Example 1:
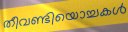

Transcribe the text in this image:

തീവണ്ടിയൊച്ചകൾ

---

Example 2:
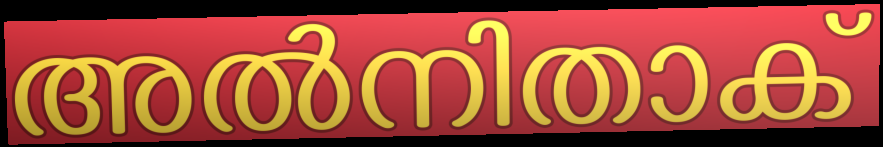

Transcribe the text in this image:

അൽനിതാക്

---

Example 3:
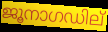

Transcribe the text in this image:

ജൂനാഗഡില്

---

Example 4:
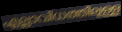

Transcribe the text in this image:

എല്ലാവിധത്തിലുള്ള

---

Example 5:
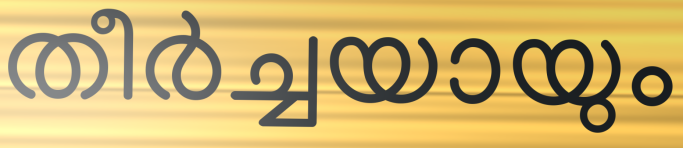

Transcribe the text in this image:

തീർച്ചയായും